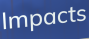
Impacts